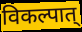
विकल्पात्